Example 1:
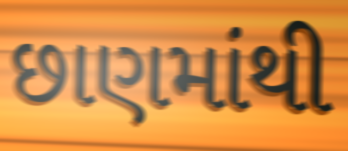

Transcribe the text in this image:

છાણમાંથી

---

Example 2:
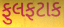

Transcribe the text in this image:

ફુલફટાક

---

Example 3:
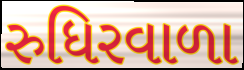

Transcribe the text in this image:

રુધિરવાળા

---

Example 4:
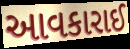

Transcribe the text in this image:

આવકારાઈ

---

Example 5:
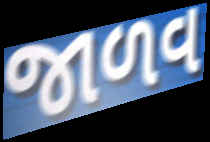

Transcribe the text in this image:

જાળવ